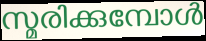
സ്മരിക്കുമ്പോൾ